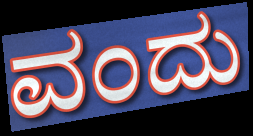
ವಂದು